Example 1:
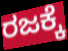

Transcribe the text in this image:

ರಜಕ್ಕೆ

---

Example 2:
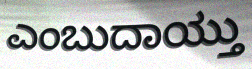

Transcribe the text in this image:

ಎಂಬುದಾಯ್ತು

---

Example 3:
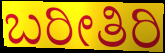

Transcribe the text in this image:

ಬರೀತಿರಿ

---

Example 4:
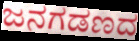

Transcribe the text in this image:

ಜನಗಡಣದ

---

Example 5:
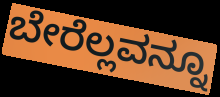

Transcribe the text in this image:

ಬೇರೆಲ್ಲವನ್ನೂ